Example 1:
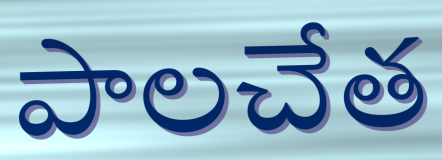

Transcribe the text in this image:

పాలచేత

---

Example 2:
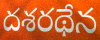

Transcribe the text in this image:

దశరథేన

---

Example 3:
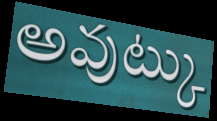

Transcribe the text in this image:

అవుట్కు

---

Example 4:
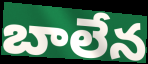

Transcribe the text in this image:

బాలేన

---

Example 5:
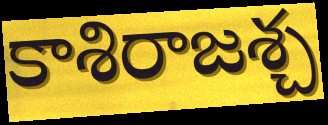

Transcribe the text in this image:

కాశిరాజశ్చ